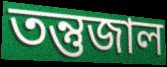
তন্তুজাল